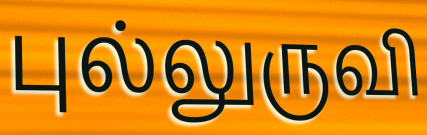
புல்லுருவி